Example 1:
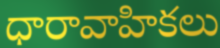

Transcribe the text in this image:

ధారావాహికలు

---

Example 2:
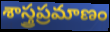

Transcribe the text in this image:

శాస్త్రప్రమాణం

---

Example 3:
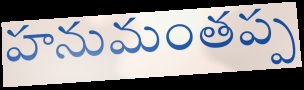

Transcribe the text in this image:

హనుమంతప్ప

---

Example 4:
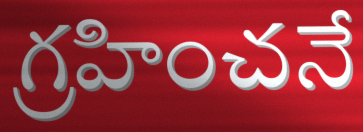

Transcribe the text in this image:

గ్రహించనే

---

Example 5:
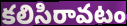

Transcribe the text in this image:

కలిసిరావటం